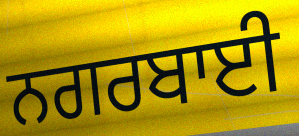
ਨਗਰਬਾਈ